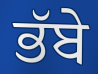
ਭੱਬੇ